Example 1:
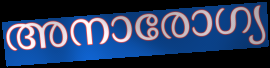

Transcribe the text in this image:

അനാരോഗ്യ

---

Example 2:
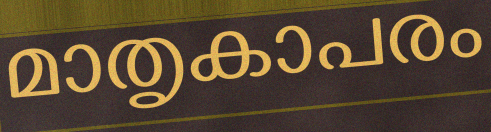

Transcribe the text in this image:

മാതൃകാപരം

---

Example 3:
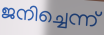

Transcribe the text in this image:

ജനിച്ചെന്ന്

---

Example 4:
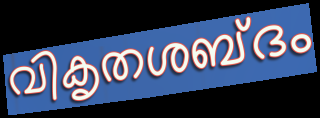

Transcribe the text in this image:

വികൃതശബ്ദം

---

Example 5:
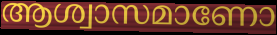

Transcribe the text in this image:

ആശ്വാസമാണോ